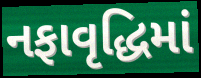
નફાવૃદ્ધિમાં